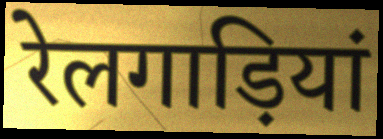
रेलगाड़ियां